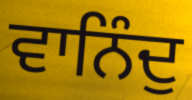
ਵਾਨਿੰਦੁ